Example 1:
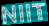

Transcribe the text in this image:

NIIT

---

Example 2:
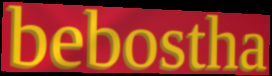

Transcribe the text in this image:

bebostha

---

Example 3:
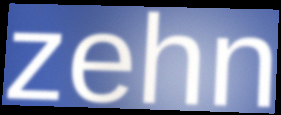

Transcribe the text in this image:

zehn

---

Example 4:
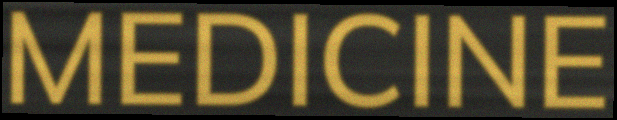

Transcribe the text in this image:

MEDICINE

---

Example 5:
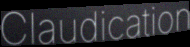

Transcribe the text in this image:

Claudication